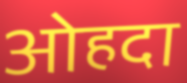
ओहदा